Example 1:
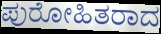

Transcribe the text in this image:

ಪುರೋಹಿತರಾದ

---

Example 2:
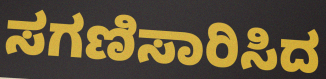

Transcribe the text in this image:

ಸಗಣಿಸಾರಿಸಿದ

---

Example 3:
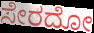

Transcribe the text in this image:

ಸೇರದೋ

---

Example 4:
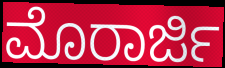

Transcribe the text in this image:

ಮೊರಾರ್ಜಿ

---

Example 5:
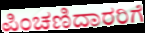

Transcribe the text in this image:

ಪಿಂಚಣಿದಾರರಿಗೆ